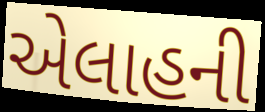
એલાહની